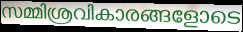
സമ്മിശ്രവികാരങ്ങളോടെ